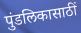
पुंडलिकासाठीं